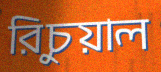
রিচুয়াল